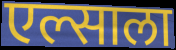
एल्साला